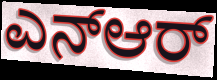
ಎನ್ಆರ್